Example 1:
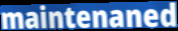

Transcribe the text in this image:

maintenaned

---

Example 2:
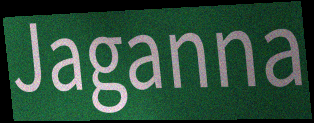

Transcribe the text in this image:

Jaganna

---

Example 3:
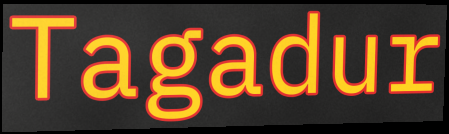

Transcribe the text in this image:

Tagadur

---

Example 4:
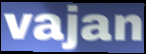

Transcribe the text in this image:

vajan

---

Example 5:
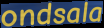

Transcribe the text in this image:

ondsala